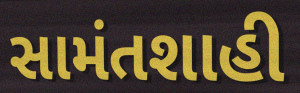
સામંતશાહી